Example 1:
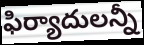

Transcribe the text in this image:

ఫిర్యాదులన్నీ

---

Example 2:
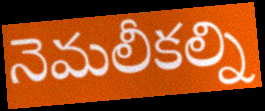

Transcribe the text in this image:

నెమలీకల్ని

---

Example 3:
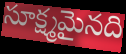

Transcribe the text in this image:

సూక్ష్మమైనది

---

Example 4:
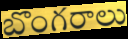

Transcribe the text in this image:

బొంగరాలు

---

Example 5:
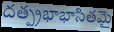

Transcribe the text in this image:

దత్ప్రభాభాసితమై